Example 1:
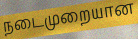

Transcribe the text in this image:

நடைமுறையான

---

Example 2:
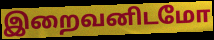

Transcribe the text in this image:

இறைவனிடமோ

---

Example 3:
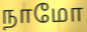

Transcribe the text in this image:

நாமோ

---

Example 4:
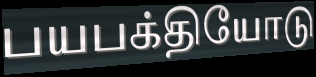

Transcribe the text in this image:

பயபக்தியோடு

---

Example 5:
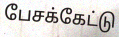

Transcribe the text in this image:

பேசக்கேட்டு